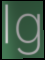
Ig